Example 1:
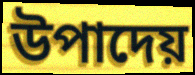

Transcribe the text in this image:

উপাদেয়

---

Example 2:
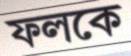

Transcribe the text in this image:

ফলকে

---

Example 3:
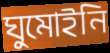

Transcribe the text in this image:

ঘুমোইনি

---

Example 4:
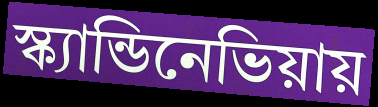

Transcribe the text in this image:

স্ক্যান্ডিনেভিয়ায়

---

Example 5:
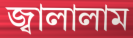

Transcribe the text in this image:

জ্বালালাম